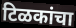
टिळकांचा